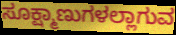
ಸೂಕ್ಷ್ಮಾಣುಗಳಲ್ಲಾಗುವ